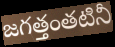
జగత్తంతటినీ